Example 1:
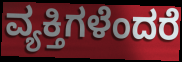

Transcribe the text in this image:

ವ್ಯಕ್ತಿಗಳೆಂದರೆ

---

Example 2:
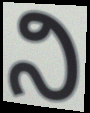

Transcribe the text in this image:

ನಿ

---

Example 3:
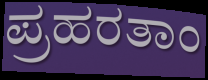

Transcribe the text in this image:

ಪ್ರಹರತಾಂ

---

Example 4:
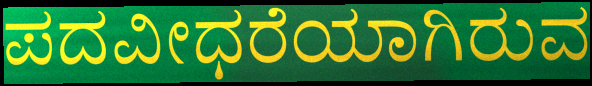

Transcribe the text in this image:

ಪದವೀಧರೆಯಾಗಿರುವ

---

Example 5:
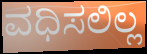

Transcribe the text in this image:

ವಧಿಸಲಿಲ್ಲ